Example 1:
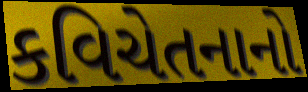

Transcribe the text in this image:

કવિચેતનાનો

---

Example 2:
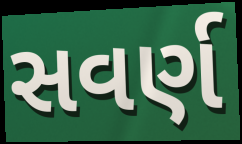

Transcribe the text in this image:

સવર્ણ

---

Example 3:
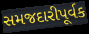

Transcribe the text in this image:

સમજદારીપૂર્વક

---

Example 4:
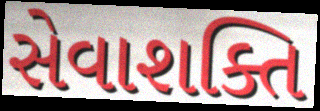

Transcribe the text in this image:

સેવાશક્તિ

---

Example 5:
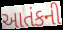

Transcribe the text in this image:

આતંકની